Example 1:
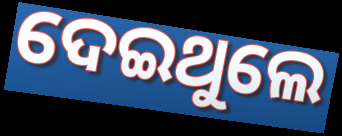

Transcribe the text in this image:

ଦେଇଥୁଲେ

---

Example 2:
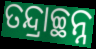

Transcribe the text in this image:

ତନ୍ଦ୍ରାଚ୍ଛନ୍ନ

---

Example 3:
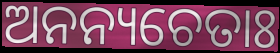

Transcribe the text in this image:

ଅନନ୍ୟଚେତାଃ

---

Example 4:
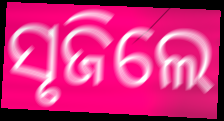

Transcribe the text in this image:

ସୃଜିଲେ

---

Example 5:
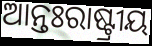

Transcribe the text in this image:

ଆନ୍ତଃରାଷ୍ଟ୍ରୀୟ